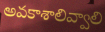
అవకాశాలివ్వాలి